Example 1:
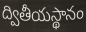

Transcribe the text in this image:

ద్వితీయస్థానం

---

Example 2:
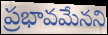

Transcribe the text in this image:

ప్రభావమేనని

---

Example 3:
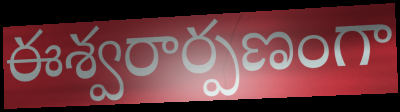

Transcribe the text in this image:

ఈశ్వరార్పణంగా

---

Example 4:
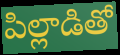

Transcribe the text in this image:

పిల్లాడితో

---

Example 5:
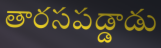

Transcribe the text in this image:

తారసపడ్డాడు